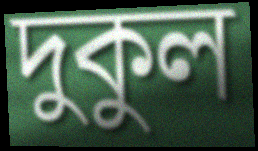
দুকুল